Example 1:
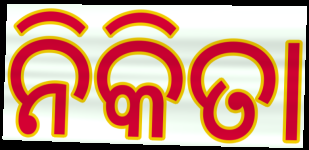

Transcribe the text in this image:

ନିକିତା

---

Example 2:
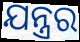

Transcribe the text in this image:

ଯନ୍ତ୍ରର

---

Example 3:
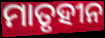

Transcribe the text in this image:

ମାତୃହୀନ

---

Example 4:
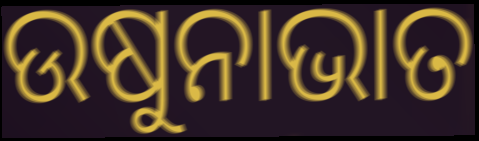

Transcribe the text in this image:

ଉଷୁନାଭାତ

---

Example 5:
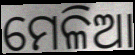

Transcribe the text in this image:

ମେଳିଆ